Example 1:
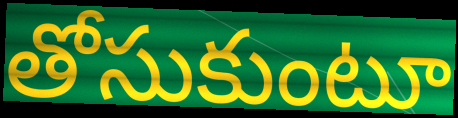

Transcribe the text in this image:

తోసుకుంటూ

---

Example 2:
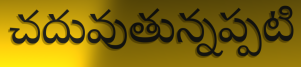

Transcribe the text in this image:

చదువుతున్నప్పటి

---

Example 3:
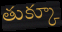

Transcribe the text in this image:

తుక్కూ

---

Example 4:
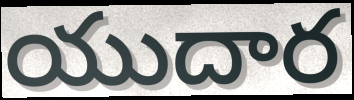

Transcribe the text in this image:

యుదార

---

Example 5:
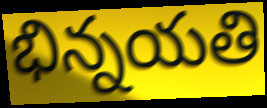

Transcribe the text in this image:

భిన్నయతి